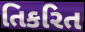
તિકરિત